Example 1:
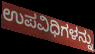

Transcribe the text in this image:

ಉಪವಿಧಿಗಳನ್ನು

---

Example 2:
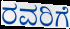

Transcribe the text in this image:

ರವರಿಗೆ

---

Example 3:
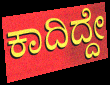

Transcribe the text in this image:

ಕಾದಿದ್ದೇ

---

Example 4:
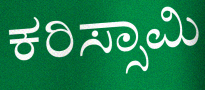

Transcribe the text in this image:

ಕರಿಸ್ಸಾಮಿ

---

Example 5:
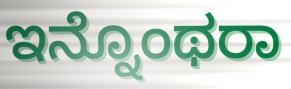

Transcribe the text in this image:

ಇನ್ನೊಂಥರಾ